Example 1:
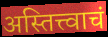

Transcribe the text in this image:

अस्तित्त्वाचं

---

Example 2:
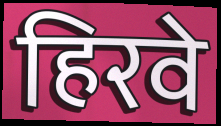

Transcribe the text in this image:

हिरवे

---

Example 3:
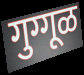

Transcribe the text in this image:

गुग्गूळ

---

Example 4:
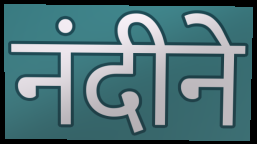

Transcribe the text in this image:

नंदीने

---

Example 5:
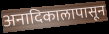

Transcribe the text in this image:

अनादिकालापासून